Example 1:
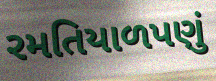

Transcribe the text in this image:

રમતિયાળપણું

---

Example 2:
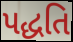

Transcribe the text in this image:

પદ્ધતિ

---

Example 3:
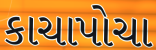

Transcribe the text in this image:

કાચાપોચા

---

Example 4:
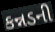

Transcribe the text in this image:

કન્નડની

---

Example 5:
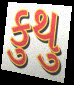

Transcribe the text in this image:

કુથુ